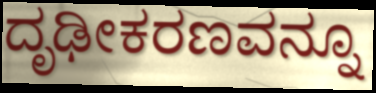
ದೃಢೀಕರಣವನ್ನೂ